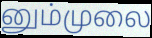
னும்முலை